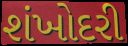
શંખોદરી